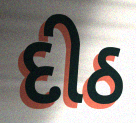
દીઠ